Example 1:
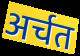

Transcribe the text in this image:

अर्चत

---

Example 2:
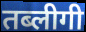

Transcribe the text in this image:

तब्लीगी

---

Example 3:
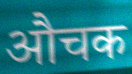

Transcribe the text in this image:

औचक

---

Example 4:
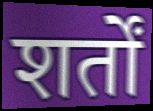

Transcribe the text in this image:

शर्तों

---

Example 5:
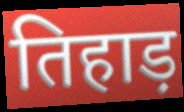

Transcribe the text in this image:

तिहाड़